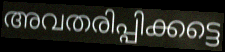
അവതരിപ്പിക്കട്ടെ